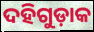
ଦହିଗୁଡ଼ାକ